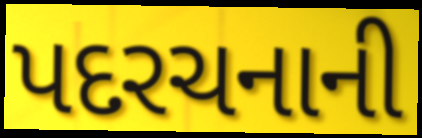
પદરચનાની